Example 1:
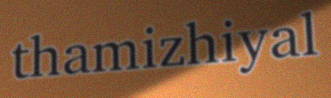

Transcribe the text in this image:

thamizhiyal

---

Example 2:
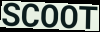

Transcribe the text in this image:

SCOOT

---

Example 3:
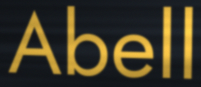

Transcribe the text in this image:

Abell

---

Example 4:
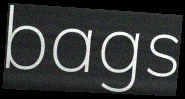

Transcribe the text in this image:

bags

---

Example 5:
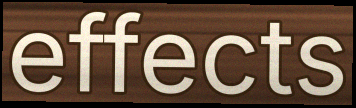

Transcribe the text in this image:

effects